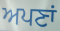
ਅਪਣਾਂ